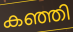
കഞ്ഞി